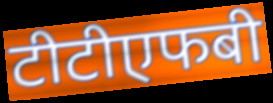
टीटीएफबी